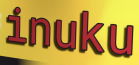
inuku